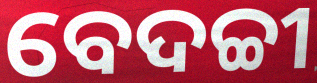
ବେଦଚ୍ଚୀ